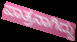
ಪಾತ್ರನಾಗಿದ್ದು